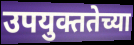
उपयुक्ततेच्या